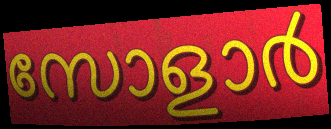
സോളാർ